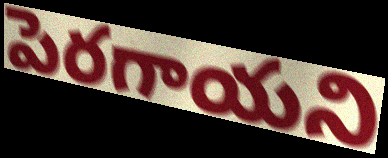
పెరగాయని